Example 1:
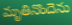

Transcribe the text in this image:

మృతినొందెను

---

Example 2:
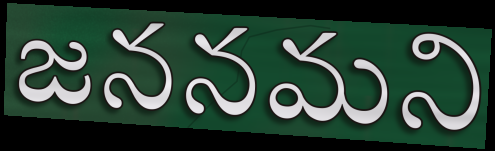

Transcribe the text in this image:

జననమని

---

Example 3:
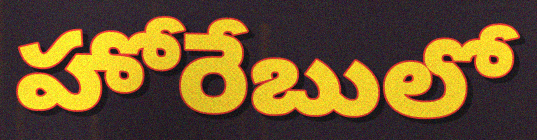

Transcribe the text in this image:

హోరేబులో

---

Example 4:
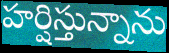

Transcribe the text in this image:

హర్షిస్తున్నాను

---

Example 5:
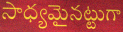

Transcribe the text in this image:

సాధ్యమైనట్టుగా